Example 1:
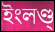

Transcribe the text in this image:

ইংলণ্ড্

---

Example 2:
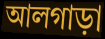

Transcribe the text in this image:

আলগাড়া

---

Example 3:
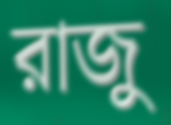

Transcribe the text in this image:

রাজু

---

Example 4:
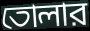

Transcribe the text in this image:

তোলার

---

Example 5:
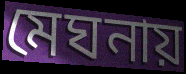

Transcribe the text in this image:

মেঘনায়